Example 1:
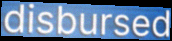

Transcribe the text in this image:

disbursed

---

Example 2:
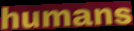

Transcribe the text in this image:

humans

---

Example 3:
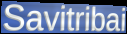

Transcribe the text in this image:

Savitribai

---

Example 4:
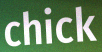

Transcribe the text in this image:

chick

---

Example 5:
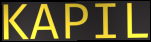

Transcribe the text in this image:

KAPIL